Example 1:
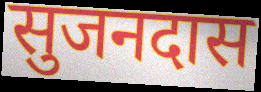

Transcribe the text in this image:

सुजनदास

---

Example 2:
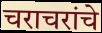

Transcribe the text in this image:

चराचरांचे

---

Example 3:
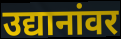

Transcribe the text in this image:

उद्यानांवर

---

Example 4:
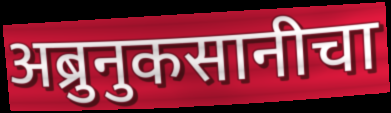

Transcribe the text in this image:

अब्रुनुकसानीचा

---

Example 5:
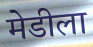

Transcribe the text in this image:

मेडीला